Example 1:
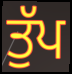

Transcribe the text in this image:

ਤੁੱਪ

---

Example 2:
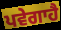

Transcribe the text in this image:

ਪਵੇਗਾਹੈ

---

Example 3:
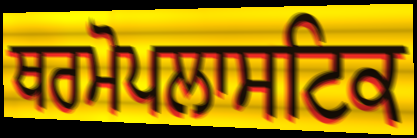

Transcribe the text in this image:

ਥਰਮੋਪਲਾਸਟਿਕ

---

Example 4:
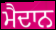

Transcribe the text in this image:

ਮੈਦਾਨ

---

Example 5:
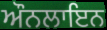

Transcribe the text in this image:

ਔਨਲਾਇਨ